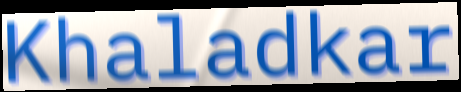
Khaladkar